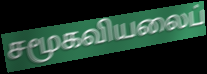
சமூகவியலைப்